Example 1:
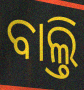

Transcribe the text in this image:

ବାଲ୍ତି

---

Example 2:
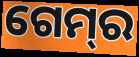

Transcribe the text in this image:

ଗେମ୍‌ର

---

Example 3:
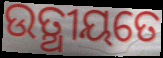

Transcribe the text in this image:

ଉତ୍ଥୀୟତେ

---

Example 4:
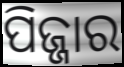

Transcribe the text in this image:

ପିଜ୍ଜାର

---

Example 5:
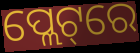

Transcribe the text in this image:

ପ୍ଲେଟ୍‌ରେ